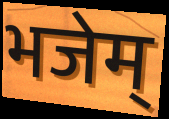
भजेम्